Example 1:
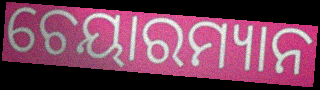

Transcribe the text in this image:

ଚେୟାରମ୍ୟାନ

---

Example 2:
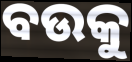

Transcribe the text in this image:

ବଉକୁ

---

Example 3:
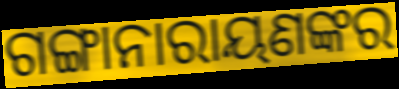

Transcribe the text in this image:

ଗଙ୍ଗାନାରାୟଣଙ୍କର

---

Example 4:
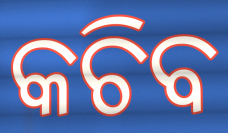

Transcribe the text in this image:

କଚିବ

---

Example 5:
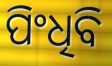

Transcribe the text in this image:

ପିଂଧିବି